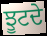
ਝੂਟਦੇ